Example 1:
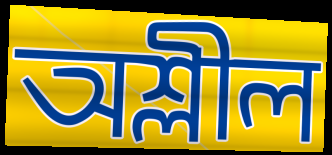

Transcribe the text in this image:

অশ্লীল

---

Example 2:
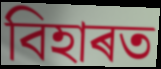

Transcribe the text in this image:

বিহাৰত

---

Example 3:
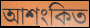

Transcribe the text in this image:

আশংকিত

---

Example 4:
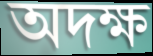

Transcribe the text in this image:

অদক্ষ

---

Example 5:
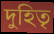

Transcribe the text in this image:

দুহিতৃ